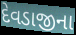
દેવડાજીના